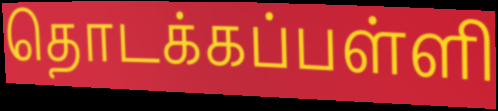
தொடக்கப்பள்ளி